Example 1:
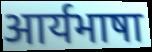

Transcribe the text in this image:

आर्यभाषा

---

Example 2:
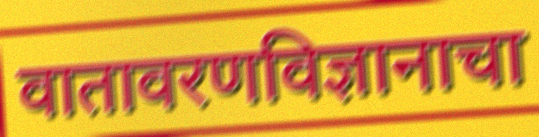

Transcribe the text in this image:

वातावरणविज्ञानाचा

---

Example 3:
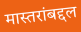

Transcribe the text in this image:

मास्तरांबद्दल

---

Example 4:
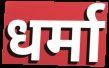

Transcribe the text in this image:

धर्मा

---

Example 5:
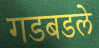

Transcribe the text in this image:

गडबडले